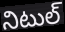
నిటుల్